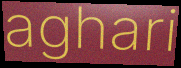
aghari